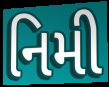
નિમી